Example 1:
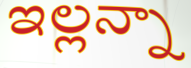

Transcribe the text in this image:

ఇల్లన్నా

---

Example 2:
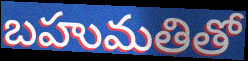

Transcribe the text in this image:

బహుమతితో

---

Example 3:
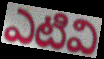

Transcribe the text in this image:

ఎటివి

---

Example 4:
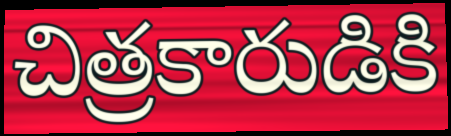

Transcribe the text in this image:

చిత్రకారుడికి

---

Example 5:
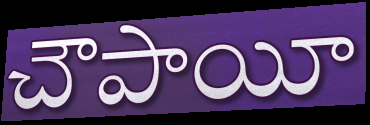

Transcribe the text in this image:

చౌపాయీ